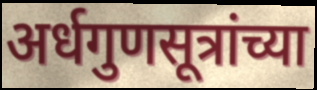
अर्धगुणसूत्रांच्या